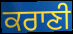
ਕਰਾਣੀ